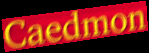
Caedmon